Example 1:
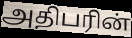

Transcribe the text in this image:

அதிபரின்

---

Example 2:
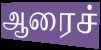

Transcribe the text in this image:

ஆரைச்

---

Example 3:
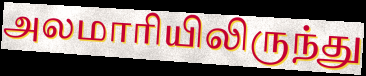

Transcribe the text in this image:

அலமாரியிலிருந்து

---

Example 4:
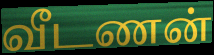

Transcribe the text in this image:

வீடணன்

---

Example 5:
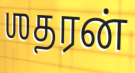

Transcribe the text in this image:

ஶதரன்